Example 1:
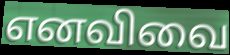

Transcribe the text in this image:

எனவிவை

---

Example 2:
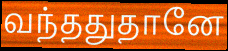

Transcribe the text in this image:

வந்ததுதானே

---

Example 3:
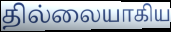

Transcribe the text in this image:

தில்லையாகிய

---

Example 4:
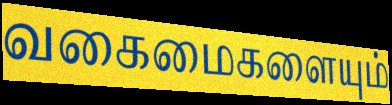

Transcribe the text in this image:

வகைமைகளையும்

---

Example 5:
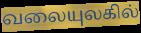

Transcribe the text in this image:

வலையுலகில்